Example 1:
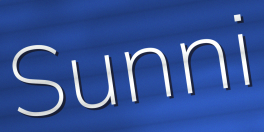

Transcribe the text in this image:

Sunni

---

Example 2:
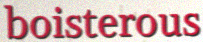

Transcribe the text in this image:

boisterous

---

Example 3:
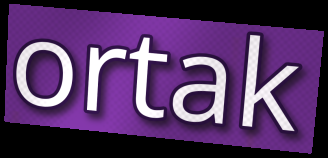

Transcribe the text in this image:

ortak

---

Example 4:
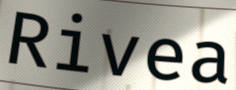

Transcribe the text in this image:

Rivea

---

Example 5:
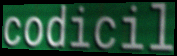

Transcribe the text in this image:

codicil